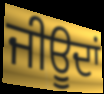
ਜੀਊਦਾਂ